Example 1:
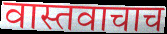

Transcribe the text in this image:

वास्तवाचाच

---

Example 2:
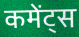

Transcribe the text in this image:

कमेंट्स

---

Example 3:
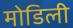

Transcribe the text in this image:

मोडिली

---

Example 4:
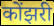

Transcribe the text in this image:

कोंझरी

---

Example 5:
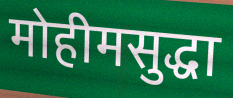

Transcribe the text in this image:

मोहीमसुद्धा